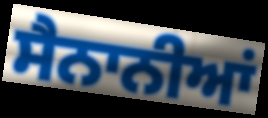
ਸੈਨਾਨੀਆਂ